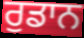
ਰੁਡਾਨ